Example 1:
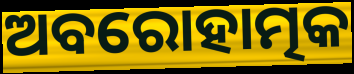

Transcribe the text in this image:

ଅବରୋହାତ୍ମକ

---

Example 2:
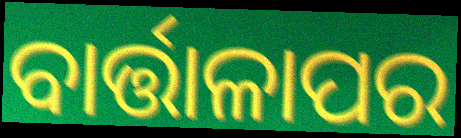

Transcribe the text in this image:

ବାର୍ତ୍ତାଳାପର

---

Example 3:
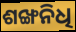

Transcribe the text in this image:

ଶଙ୍ଖନିଧି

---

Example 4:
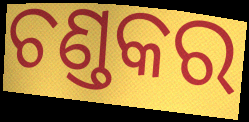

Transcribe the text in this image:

ଚଣ୍ଡକର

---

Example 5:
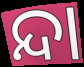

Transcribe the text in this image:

ନ୍ଦା